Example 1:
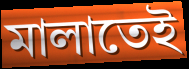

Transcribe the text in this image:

মালাতেই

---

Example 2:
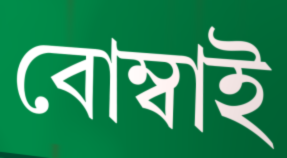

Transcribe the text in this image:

বোম্বাই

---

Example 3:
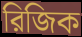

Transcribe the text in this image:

রিজিক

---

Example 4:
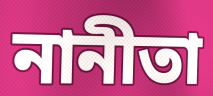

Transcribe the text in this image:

নানীতা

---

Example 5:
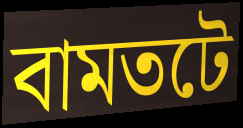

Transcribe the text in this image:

বামতটে